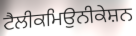
ਟੈਲੀਕਮਿਉਨੀਕੇਸ਼ਨ